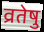
व्रतेषु